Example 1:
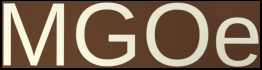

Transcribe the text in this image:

MGOe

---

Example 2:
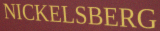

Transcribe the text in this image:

NICKELSBERG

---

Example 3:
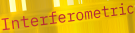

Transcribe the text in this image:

Interferometric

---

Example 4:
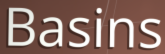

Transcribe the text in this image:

Basins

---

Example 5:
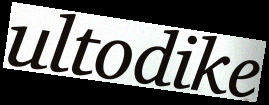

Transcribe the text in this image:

ultodike